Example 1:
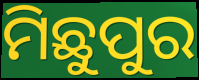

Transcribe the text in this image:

ମିଛୁପୁର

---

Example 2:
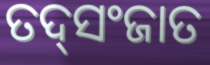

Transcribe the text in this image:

ତଦ୍‌ସଂଜାତ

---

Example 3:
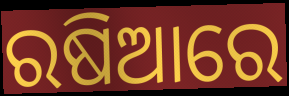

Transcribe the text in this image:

ରଷିଆରେ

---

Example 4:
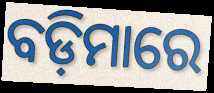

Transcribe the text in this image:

ବଡ଼ିମାରେ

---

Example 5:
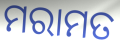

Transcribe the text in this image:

ମରାମତ